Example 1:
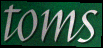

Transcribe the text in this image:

toms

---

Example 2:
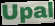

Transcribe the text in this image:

Upal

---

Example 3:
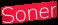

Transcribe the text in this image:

Soner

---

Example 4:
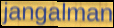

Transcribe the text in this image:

jangalman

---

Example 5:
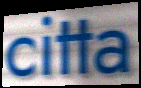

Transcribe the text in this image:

citta